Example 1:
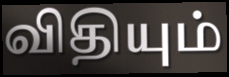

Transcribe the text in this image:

விதியும்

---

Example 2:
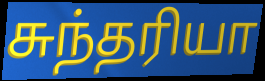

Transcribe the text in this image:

சுந்தரியா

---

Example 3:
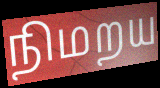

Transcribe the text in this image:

நிமறய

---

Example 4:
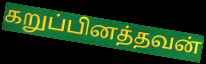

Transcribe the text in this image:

கறுப்பினத்தவன்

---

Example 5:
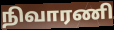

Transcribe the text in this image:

நிவாரணி